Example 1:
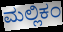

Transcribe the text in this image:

ಮಲ್ಲಿಕಂ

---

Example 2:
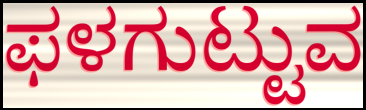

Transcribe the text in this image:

ಫಳಗುಟ್ಟುವ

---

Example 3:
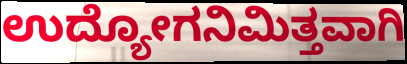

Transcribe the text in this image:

ಉದ್ಯೋಗನಿಮಿತ್ತವಾಗಿ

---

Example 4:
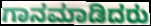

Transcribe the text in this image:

ಗಾನಮಾಡಿದರು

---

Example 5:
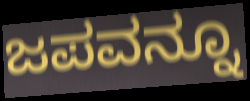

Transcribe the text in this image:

ಜಪವನ್ನೂ